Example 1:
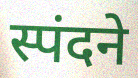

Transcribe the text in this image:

स्पंदने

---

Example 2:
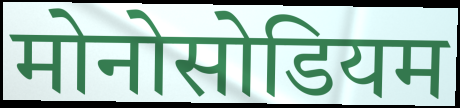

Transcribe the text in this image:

मोनोसोडियम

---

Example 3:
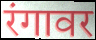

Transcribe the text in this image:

रंगावर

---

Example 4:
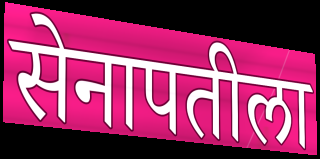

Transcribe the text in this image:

सेनापतीला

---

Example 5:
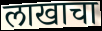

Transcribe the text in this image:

लाखाचा